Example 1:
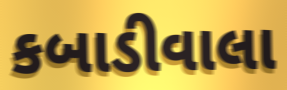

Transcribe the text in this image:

કબાડીવાલા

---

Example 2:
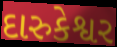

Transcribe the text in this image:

દારુકેશ્વર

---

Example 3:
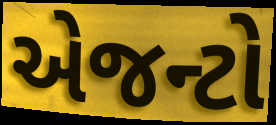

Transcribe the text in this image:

એજન્ટો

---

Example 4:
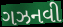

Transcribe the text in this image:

ગઝનવી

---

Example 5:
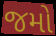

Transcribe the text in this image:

જમો